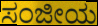
ಸಂಜೀಯ